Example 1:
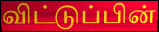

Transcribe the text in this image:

விட்டுப்பின்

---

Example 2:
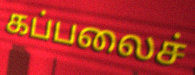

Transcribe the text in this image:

கப்பலைச்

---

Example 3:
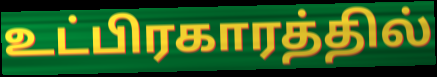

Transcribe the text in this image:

உட்பிரகாரத்தில்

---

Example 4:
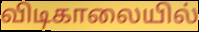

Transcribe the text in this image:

விடிகாலையில்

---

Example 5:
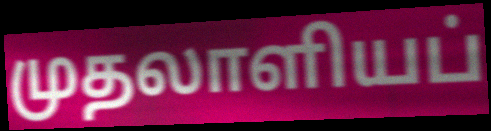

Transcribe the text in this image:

முதலாளியப்